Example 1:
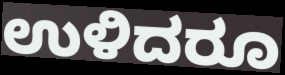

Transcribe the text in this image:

ಉಳಿದರೂ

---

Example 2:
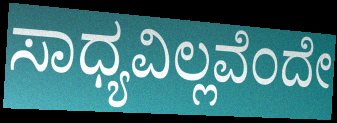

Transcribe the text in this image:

ಸಾಧ್ಯವಿಲ್ಲವೆಂದೇ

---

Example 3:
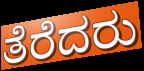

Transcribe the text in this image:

ತೆರೆದರು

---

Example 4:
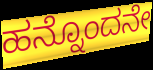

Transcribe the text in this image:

ಹನ್ನೊಂದನೇ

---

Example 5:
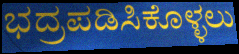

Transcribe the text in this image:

ಭದ್ರಪಡಿಸಿಕೊಳ್ಳಲು